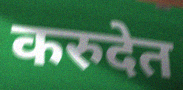
करुदेत